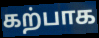
கற்பாக